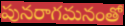
పునరాగమనంతో